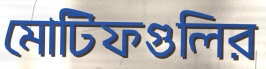
মোটিফগুলির